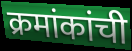
क्रमांकांची